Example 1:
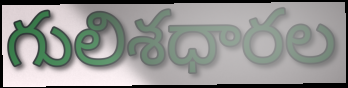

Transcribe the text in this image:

గులిశధారల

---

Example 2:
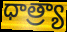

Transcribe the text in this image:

ధాత్ర్యా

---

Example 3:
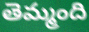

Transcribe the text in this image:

తెమ్మంది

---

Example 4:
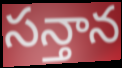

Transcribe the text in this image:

సన్తాన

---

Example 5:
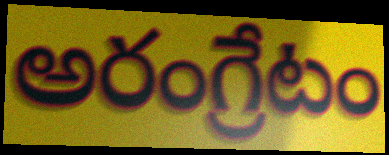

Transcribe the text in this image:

అరంగ్రేటం